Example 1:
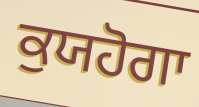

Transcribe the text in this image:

ਕੁਯਹੋਗਾ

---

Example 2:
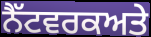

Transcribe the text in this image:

ਨੈੱਟਵਰਕਅਤੇ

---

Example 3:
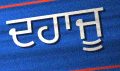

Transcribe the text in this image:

ਦਹਾਜੂ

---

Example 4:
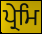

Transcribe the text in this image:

ਪ੍ਰੇਮਿ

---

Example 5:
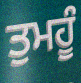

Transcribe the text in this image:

ਤੁਮਹੂੰ